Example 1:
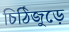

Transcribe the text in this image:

চিঠিজুড়ে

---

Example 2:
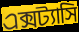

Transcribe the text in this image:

এক্সট্যাসি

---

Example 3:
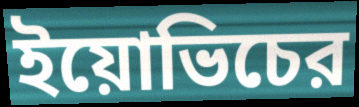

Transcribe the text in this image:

ইয়োভিচের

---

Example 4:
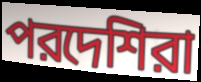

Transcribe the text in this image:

পরদেশিরা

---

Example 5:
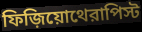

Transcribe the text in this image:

ফিজ়িয়োথেরাপিস্ট